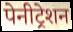
पेनीट्रेशन